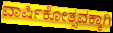
ವಾರ್ಷಿಕೋತ್ಸವಕ್ಕಾಗಿ